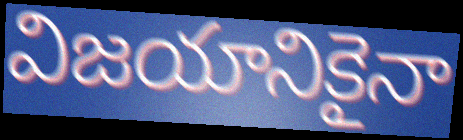
విజయానికైనా